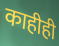
काहीही